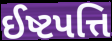
ઈષ્ટપત્તિ